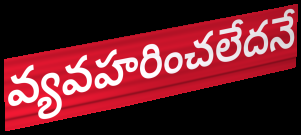
వ్యవహరించలేదనే